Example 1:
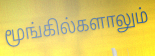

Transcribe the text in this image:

மூங்கில்களாலும்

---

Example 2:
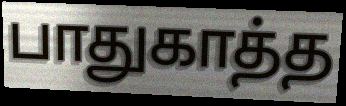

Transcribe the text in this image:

பாதுகாத்த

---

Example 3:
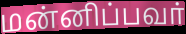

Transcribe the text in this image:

மன்னிப்பவர்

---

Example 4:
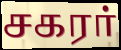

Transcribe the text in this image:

சகரர்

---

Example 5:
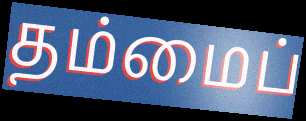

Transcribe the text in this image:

தம்மைப்